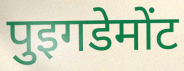
पुइगडेमोंट